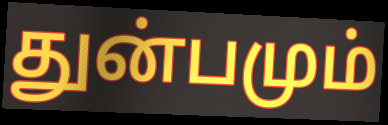
துன்பமும்